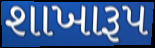
શાખારૂપ